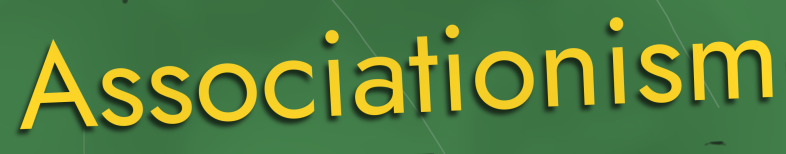
Associationism